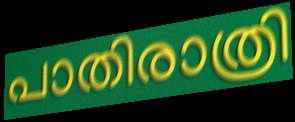
പാതിരാത്രി